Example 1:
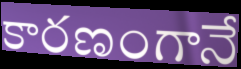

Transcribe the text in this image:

కారణంగానే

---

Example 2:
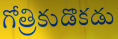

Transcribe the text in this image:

గోత్రికుడొకడు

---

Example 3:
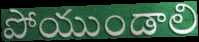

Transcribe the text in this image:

పోయుండాలి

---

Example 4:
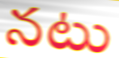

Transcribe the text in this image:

నటు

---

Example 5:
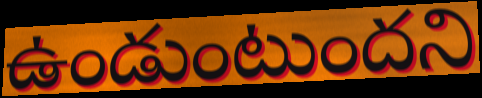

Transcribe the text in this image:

ఉండుంటుందని